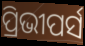
ପ୍ରିଭୀପର୍ସ